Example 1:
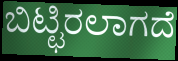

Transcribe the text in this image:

ಬಿಟ್ಟಿರಲಾಗದೆ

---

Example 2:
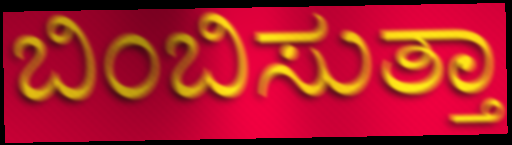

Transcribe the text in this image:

ಬಿಂಬಿಸುತ್ತಾ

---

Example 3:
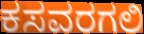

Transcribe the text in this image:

ಕಸವರಗಲಿ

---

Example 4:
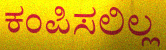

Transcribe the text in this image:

ಕಂಪಿಸಲಿಲ್ಲ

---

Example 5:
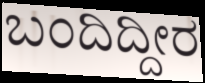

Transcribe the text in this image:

ಬಂದಿದ್ದೀರ